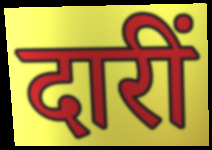
दारीं